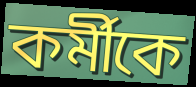
কর্মীকে